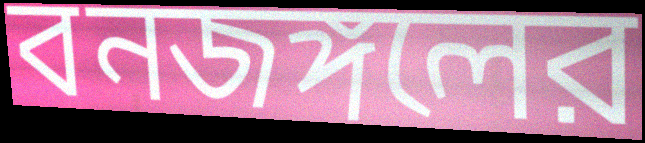
বনজঙ্গলের